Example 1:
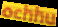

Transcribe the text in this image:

ochhu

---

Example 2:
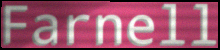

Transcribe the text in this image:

Farnell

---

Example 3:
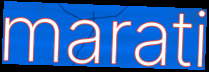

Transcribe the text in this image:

marati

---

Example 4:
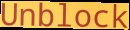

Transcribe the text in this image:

Unblock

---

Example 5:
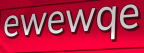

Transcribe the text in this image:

ewewqe